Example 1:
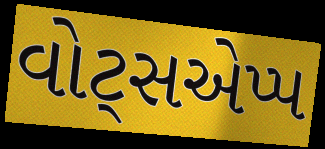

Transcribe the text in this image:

વોટ્સએપ્પ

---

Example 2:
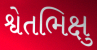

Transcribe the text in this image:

શ્વેતભિક્ષુ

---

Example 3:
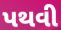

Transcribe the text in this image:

પથવી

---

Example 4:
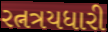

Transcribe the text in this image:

રત્નત્રયધારી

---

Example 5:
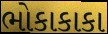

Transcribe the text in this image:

ભોકાકાકા